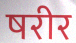
षरीर